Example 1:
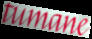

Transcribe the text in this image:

tumane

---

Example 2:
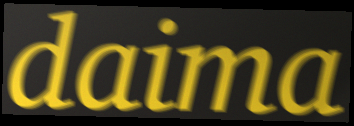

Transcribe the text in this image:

daima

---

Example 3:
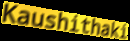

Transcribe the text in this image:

Kaushithaki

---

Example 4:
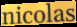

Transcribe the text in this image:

nicolas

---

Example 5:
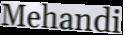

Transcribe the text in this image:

Mehandi